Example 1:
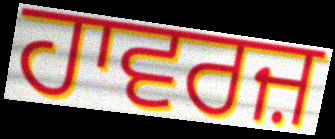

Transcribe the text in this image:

ਹਾਵਰਜ਼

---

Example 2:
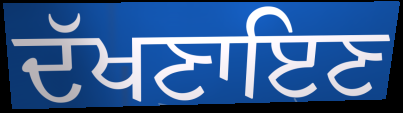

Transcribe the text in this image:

ਦੱਖਣਾਇਣ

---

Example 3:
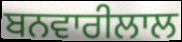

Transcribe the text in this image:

ਬਨਵਾਰੀਲਾਲ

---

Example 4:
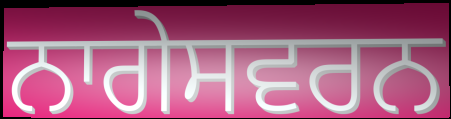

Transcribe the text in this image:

ਨਾਗੇਸਵਰਨ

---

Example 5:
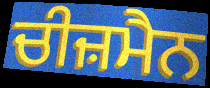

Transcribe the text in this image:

ਚੀਜ਼ਮੈਨ